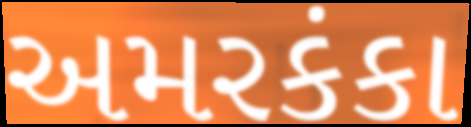
અમરકંકા